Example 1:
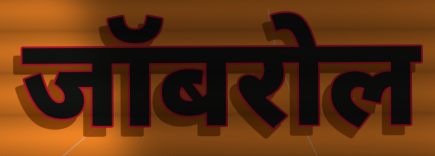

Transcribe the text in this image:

जॉबरोल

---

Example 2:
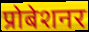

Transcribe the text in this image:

प्रोबेशनर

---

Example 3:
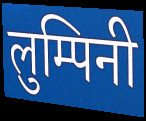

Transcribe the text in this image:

लुम्पिनी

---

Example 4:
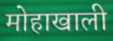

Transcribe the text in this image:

मोहाखाली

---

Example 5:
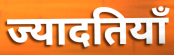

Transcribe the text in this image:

ज्यादतियाँ